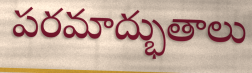
పరమాద్భుతాలు